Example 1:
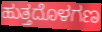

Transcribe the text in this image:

ಹುತ್ತದೊಳಗಣ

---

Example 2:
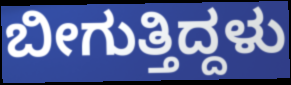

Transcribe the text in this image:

ಬೀಗುತ್ತಿದ್ದಳು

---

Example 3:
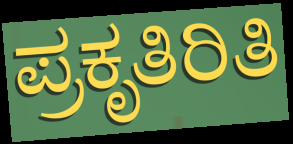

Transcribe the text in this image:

ಪ್ರಕೃತಿರಿತಿ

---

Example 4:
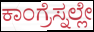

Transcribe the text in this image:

ಕಾಂಗ್ರೆಸ್ನಲ್ಲೇ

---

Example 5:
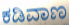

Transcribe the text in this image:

ಕಡಿವಾಣ